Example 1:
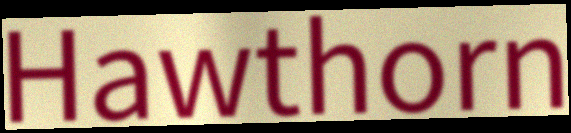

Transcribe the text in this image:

Hawthorn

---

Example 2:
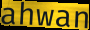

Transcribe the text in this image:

ahwan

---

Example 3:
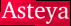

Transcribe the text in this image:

Asteya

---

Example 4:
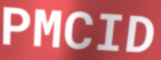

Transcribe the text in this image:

PMCID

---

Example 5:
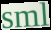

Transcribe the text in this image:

sml